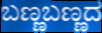
ಬಣ್ಣಬಣ್ಣದ